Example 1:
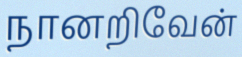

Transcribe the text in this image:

நானறிவேன்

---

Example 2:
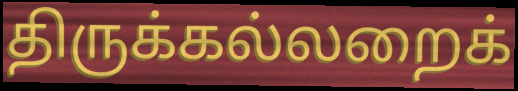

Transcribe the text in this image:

திருக்கல்லறைக்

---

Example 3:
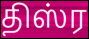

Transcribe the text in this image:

திஸ்ர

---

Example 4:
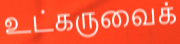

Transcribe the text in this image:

உட்கருவைக்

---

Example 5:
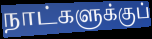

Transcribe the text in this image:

நாட்களுக்குப்